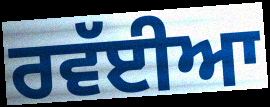
ਰਵੱਈਆ